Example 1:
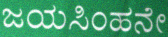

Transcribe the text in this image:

ಜಯಸಿಂಹನೇ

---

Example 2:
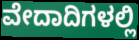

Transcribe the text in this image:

ವೇದಾದಿಗಳಲ್ಲಿ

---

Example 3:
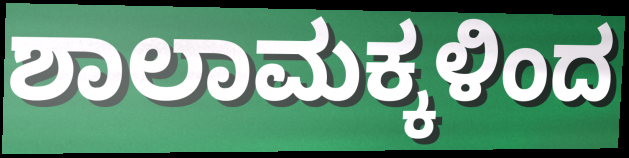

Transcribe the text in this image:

ಶಾಲಾಮಕ್ಕಳಿಂದ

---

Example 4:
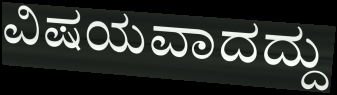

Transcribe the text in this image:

ವಿಷಯವಾದದ್ದು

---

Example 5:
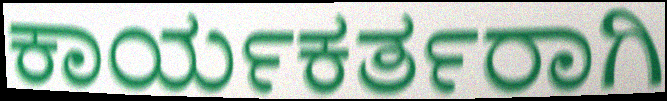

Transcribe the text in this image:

ಕಾರ್ಯಕರ್ತರಾಗಿ